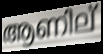
ആണില്